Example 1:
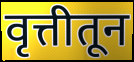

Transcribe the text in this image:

वृत्तीतून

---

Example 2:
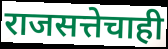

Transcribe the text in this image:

राजसत्तेचाही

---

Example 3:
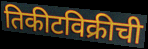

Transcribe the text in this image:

तिकीटविक्रीची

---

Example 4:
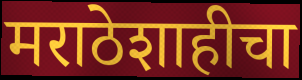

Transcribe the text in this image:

मराठेशाहीचा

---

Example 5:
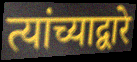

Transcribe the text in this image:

त्यांच्याद्वारे